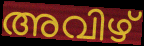
അവിഴ്